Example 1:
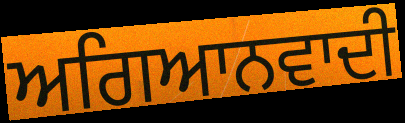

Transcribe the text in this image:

ਅਗਿਆਨਵਾਦੀ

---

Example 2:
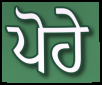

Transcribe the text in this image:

ਪੋਹੇ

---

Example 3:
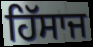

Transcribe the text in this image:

ਹਿੱਸਾਜ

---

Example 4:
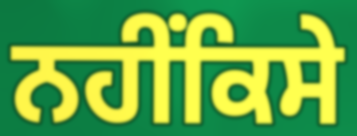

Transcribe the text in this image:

ਨਹੀਂਕਿਸੇ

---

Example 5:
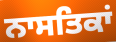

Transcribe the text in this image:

ਨਾਸਤਿਕਾਂ